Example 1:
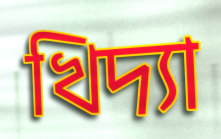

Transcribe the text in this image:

খিদ্যা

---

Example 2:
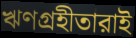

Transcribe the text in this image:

ঋণগ্রহীতারাই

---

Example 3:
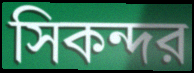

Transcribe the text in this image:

সিকন্দর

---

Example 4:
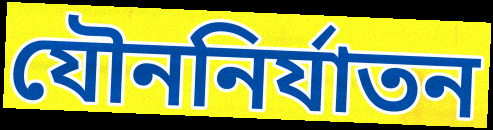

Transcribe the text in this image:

যৌননির্যাতন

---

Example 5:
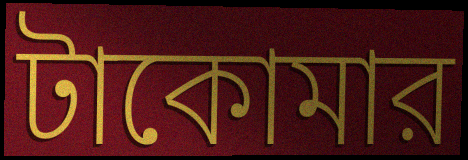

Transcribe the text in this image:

টাকোমার